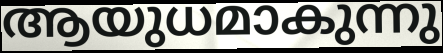
ആയുധമാകുന്നു